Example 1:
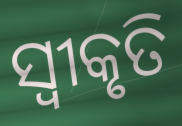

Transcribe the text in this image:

ସ୍ୱୀକୃତି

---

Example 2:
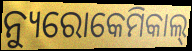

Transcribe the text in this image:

ନ୍ୟୁରୋକେମିକାଲ୍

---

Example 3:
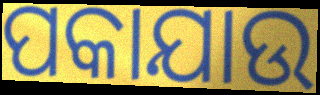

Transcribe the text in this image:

ପକାଯାଉ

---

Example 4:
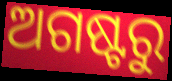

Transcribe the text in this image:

ଅଗଷ୍ଟରୁ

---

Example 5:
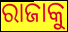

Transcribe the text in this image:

ରାଜାକୁ